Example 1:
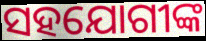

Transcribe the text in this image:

ସହଯୋଗୀଙ୍କ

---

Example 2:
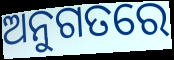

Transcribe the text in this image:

ଅନୁଗତରେ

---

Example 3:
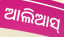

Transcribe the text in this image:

ଆଲିଆସ୍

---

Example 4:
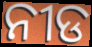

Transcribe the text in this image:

ନୀଡ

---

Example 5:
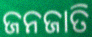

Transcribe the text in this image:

ଜନଜାତି